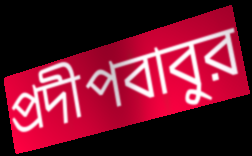
প্রদীপবাবুর